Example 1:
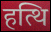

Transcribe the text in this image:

हत्थि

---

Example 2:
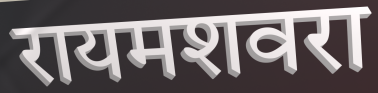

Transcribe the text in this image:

रायमशवरा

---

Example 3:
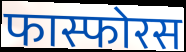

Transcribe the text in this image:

फास्‍फोरस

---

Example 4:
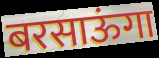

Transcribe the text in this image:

बरसाऊंगा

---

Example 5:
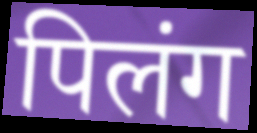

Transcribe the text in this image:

पिलंग